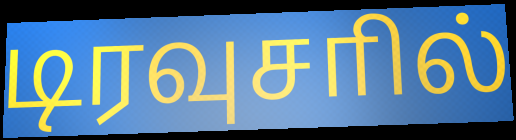
டிரவுசரில்